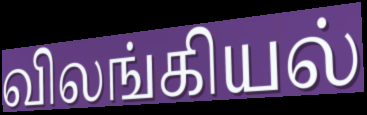
விலங்கியல்